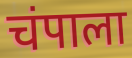
चंपाला